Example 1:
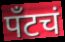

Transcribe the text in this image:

पँटचं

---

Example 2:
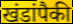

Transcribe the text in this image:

खंडांपैकी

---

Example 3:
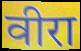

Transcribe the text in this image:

वीरा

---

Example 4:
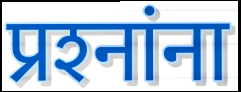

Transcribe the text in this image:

प्रश्‍नांना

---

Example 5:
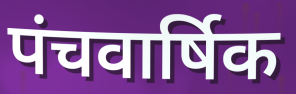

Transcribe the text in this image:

पंचवार्षिक